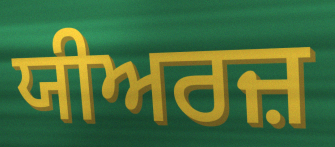
ਯੀਅਰਜ਼